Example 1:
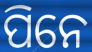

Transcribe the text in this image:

ପିନେ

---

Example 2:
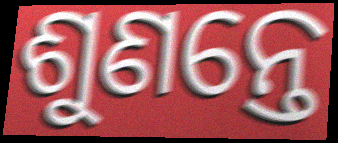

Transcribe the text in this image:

ଶୁଣନ୍ତେ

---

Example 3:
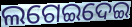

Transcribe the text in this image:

ଲଗେଇଦେଇ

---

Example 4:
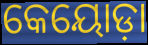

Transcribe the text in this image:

କେୟୋଡ଼ା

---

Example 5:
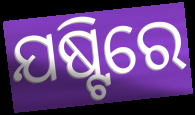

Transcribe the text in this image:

ଯଷ୍ଟିରେ